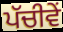
ਪੱਚੀਵੇਂ